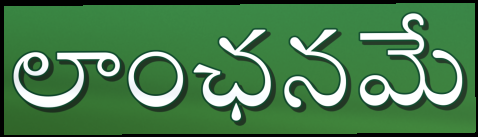
లాంఛనమే